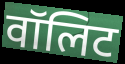
वॉलिट